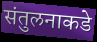
संतुलनाकडे